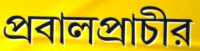
প্রবালপ্রাচীর